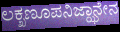
ಲಕ್ಖಣೂಪನಿಜ್ಝಾನೇನ